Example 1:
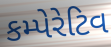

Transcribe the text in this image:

કમ્પેરેટિવ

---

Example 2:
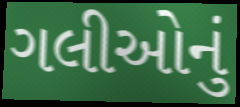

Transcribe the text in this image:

ગલીઓનું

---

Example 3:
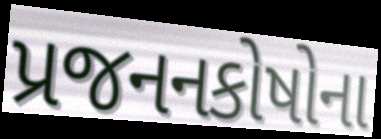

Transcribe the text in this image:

પ્રજનનકોષોના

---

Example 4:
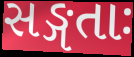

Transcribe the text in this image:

સઙ્ગતાઃ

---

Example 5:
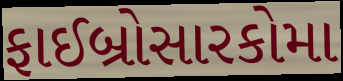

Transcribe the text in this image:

ફાઈબ્રોસારકોમા